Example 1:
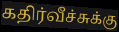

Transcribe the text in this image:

கதிர்வீச்சுக்கு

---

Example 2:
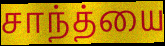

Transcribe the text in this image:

சாந்த்யை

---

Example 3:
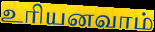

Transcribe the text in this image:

உரியனவாம்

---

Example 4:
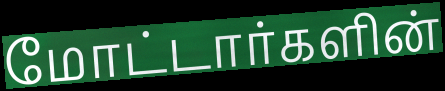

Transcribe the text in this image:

மோட்டார்களின்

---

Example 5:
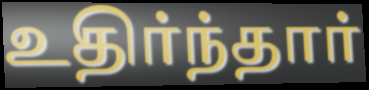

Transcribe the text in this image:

உதிர்ந்தார்